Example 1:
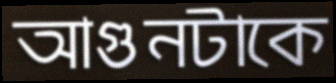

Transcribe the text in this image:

আগুনটাকে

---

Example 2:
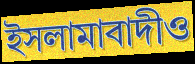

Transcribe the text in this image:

ইসলামাবাদীও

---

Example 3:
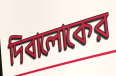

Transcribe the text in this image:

দিবালোকের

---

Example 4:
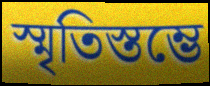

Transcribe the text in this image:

স্মৃতিস্তম্ভে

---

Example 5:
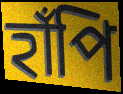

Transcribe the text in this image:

হাঁপি